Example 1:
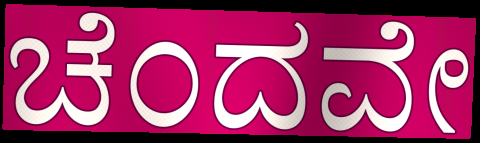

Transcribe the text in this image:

ಚೆಂದವೇ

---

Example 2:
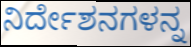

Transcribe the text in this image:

ನಿರ್ದೇಶನಗಳನ್ನ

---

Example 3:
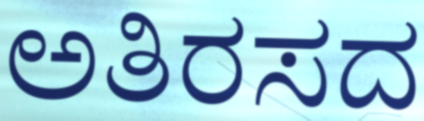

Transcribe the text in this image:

ಅತಿರಸದ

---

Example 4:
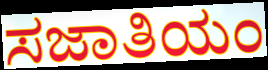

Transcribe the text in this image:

ಸಜಾತಿಯಂ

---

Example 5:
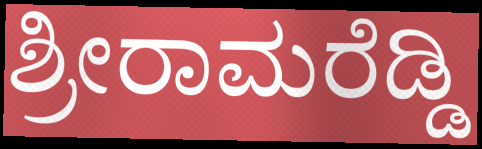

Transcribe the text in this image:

ಶ್ರೀರಾಮರೆಡ್ಡಿ